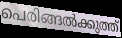
പെരിങ്ങൽക്കുത്ത്